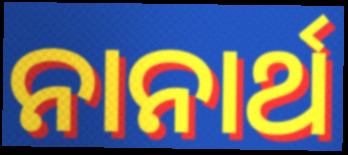
ନାନାର୍ଥ